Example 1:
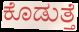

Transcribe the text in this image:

ಕೊಡುತ್ತೆ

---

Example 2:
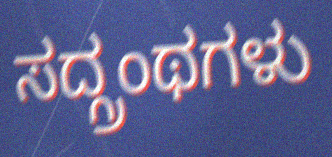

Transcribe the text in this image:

ಸದ್ಗ್ರಂಥಗಳು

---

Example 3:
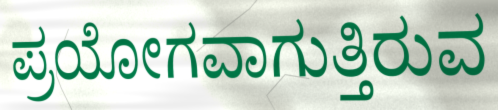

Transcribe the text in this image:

ಪ್ರಯೋಗವಾಗುತ್ತಿರುವ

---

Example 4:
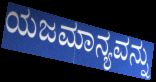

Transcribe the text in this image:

ಯಜಮಾನ್ಯವನ್ನು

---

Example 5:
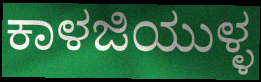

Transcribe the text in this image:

ಕಾಳಜಿಯುಳ್ಳ